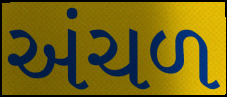
અંચળ